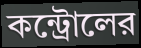
কন্ট্রোলের